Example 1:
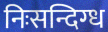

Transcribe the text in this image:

निःसन्दिग्ध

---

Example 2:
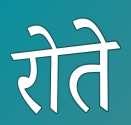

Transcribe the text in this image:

रोते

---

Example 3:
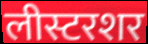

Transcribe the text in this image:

लीस्टरशर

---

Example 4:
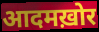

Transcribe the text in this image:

आदमख़ोर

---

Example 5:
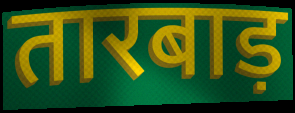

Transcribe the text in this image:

तारबाड़